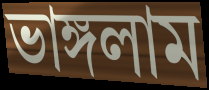
ভাঙ্গলাম